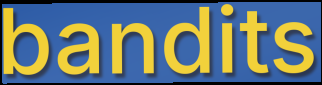
bandits